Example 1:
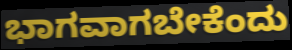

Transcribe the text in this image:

ಭಾಗವಾಗಬೇಕೆಂದು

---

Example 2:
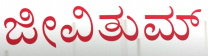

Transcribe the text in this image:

ಜೀವಿತುಮ್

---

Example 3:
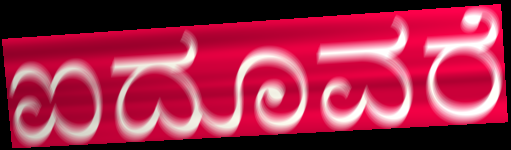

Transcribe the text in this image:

ಐದೂವರೆ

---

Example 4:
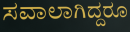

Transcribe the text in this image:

ಸವಾಲಾಗಿದ್ದರೂ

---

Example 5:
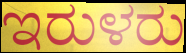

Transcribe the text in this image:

ಇರುಳರು